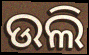
ଉଲି